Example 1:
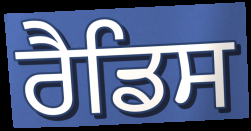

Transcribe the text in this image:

ਰੈਡਿਸ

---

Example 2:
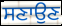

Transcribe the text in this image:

ਸਣਾਉਣ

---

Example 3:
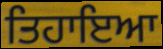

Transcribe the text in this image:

ਤਿਹਾਇਆ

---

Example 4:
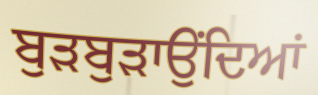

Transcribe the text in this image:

ਬੁੜਬੁੜਾਉਂਦਿਆਂ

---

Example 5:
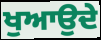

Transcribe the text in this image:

ਖੁਆਉਦੇ